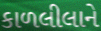
કાળલીલાને